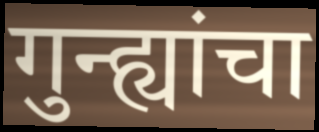
गुन्ह्यांचा